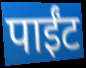
पाईंट